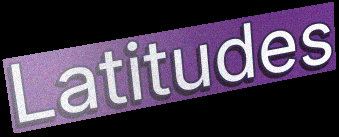
Latitudes